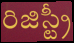
రిజిస్ట్రీ